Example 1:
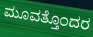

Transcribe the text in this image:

ಮೂವತ್ತೊಂದರ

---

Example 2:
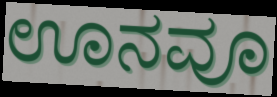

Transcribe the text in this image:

ಊನವೂ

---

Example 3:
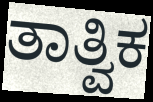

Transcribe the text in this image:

ತಾತ್ವಿಕ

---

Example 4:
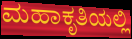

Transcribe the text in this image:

ಮಹಾಕೃತಿಯಲ್ಲಿ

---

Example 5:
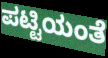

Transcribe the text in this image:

ಪಟ್ಟಿಯಂತೆ